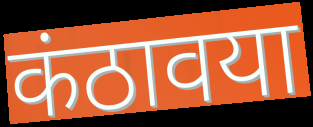
कंठावया